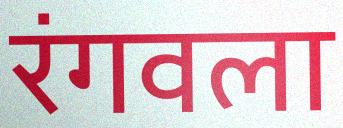
रंगवला